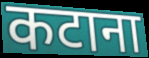
कटाना